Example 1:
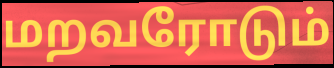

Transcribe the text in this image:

மறவரோடும்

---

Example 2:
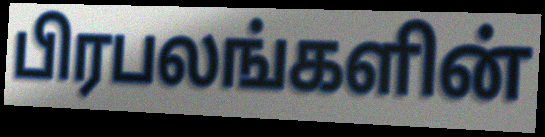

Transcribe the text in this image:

பிரபலங்களின்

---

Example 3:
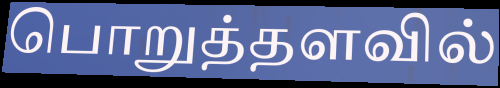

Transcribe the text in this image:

பொறுத்தளவில்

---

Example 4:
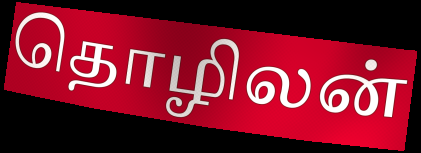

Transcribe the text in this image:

தொழிலன்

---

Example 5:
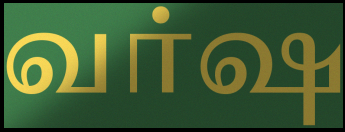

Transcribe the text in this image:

வர்ஷ